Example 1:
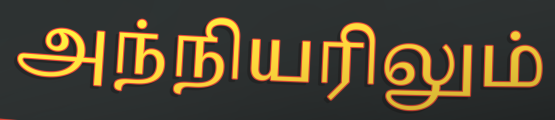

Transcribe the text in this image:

அந்நியரிலும்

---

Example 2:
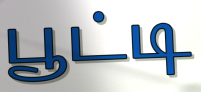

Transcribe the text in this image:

பூட்டி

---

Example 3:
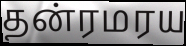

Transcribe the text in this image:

தன்ரமரய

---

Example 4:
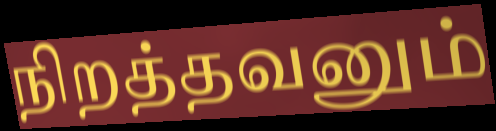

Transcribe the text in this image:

நிறத்தவனும்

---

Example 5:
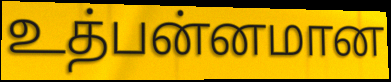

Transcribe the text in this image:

உத்பன்னமான